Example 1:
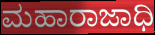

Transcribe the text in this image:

ಮಹಾರಾಜಾಧಿ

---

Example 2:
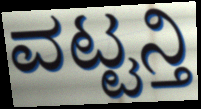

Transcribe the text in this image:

ವಟ್ಟನ್ತಿ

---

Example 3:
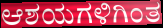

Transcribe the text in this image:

ಆಶಯಗಳಿಗಿಂತ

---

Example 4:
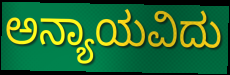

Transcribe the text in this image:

ಅನ್ಯಾಯವಿದು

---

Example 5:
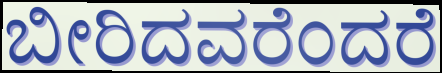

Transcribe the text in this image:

ಬೀರಿದವರೆಂದರೆ